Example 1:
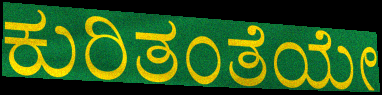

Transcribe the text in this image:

ಕುರಿತಂತೆಯೇ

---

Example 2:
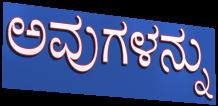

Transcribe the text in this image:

ಅವುಗಳನ್ನು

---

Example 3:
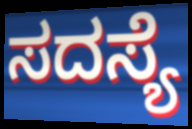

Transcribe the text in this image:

ಸದಸ್ಯೆ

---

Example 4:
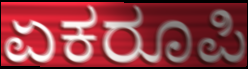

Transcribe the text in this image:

ಏಕರೂಪಿ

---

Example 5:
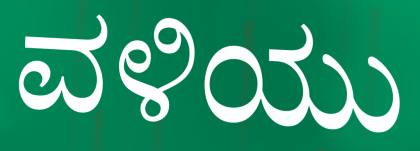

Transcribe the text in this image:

ವಳಿಯು